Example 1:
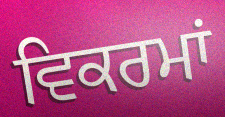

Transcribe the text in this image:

ਵਿਕਰਮਾਂ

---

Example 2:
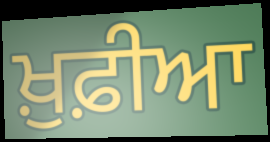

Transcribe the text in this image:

ਖ਼ੁਫ਼ੀਆ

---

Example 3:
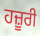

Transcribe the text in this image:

ਹਜ਼ੂਰੀ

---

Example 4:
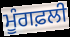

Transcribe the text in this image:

ਮੂੰਗਫ਼ਲੀ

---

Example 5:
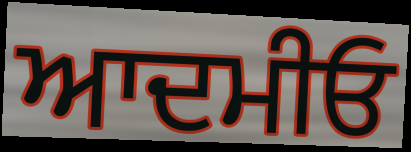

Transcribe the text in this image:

ਆਦਮੀਓ